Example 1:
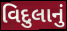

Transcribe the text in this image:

વિદુલાનું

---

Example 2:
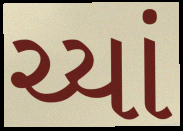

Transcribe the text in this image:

ચ્યાં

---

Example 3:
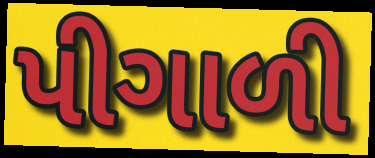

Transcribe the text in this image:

પીગાળી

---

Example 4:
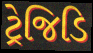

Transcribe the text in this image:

ટ્રેજિડિ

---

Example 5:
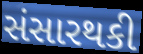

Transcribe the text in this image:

સંસારથકી